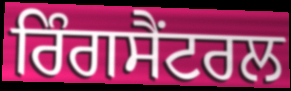
ਰਿੰਗਸੈਂਟਰਲ